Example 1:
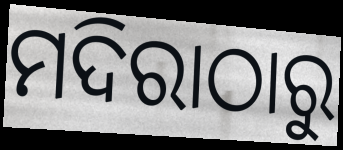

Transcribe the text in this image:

ମଦିରାଠାରୁ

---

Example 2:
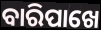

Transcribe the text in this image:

ବାରିପାଖେ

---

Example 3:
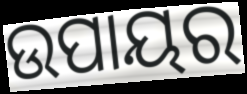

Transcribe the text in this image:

ଉପାୟର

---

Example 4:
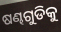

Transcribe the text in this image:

ଷଣ୍ଢଗୁଡିକୁ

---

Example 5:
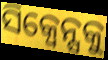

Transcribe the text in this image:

ସିକ୍ୱେନ୍ସକୁ